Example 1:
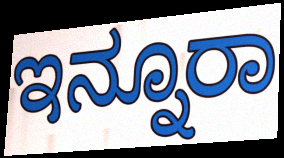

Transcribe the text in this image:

ಇನ್ನೂರಾ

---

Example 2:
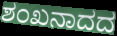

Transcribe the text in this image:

ಶಂಖನಾದದ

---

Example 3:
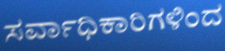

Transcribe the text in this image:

ಸರ್ವಾಧಿಕಾರಿಗಳಿಂದ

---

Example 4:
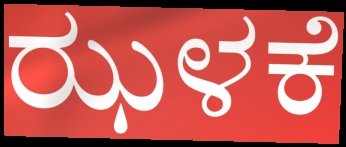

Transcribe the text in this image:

ಝಳಕೆ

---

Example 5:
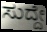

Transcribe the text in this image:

ಸುದ್ದೇ